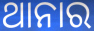
ଥାନାର